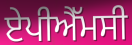
ਏਪੀਐੱਮਸੀ